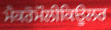
ਮੈਕਰੋਮੌਲੀਕਿਊਲਰ